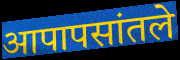
आपापसांतले